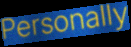
Personally